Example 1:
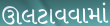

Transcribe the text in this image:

ઊલટાવવામાં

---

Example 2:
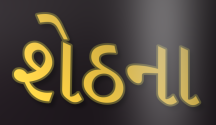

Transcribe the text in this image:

શેઠના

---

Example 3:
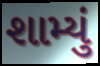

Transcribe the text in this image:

શામ્યું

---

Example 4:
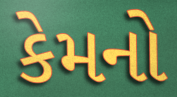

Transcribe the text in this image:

કેમનો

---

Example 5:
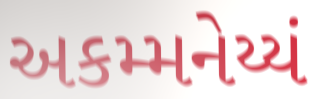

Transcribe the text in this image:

અકમ્મનેય્યં